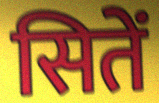
सितें